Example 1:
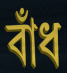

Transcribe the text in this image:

বাঁধ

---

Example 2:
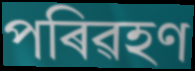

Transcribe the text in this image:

পৰিৱহণ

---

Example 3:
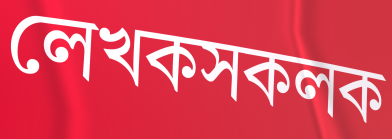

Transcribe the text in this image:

লেখকসকলক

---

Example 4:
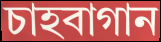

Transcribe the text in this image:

চাহবাগান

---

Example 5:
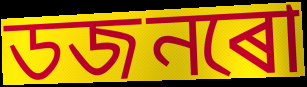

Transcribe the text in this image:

ডজনৰো